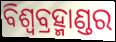
ବିଶ୍ୱବ୍ରହ୍ମାଣ୍ଡର